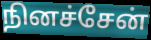
நினச்சேன்